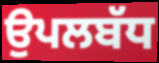
ਉਪਲਬੱਧ